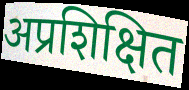
अप्रशिक्षित